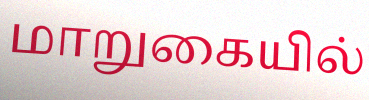
மாறுகையில்